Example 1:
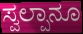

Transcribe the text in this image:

ಸ್ವಲ್ಪಾನೂ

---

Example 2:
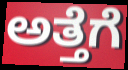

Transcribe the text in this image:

ಅತ್ತೆಗೆ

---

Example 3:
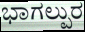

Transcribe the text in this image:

ಭಾಗಲ್ಪುರ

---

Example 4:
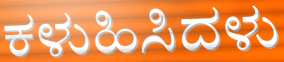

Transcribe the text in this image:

ಕಳುಹಿಸಿದಳು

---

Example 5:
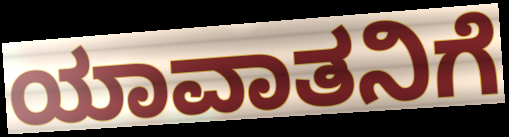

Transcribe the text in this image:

ಯಾವಾತನಿಗೆ